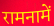
रामनामें